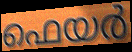
ഫെയർ